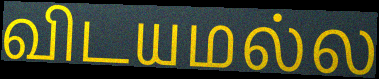
விடயமல்ல